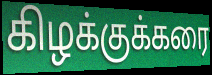
கிழக்குக்கரை